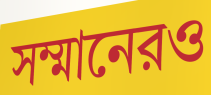
সম্মানেরও